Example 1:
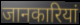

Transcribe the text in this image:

जानकारियां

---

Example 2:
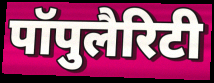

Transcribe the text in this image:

पॉपुलैरिटी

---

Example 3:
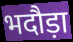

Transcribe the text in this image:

भदौड़ा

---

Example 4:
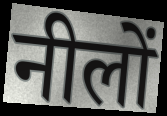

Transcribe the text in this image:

नीलों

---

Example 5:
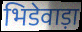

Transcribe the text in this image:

भिडेवाड़ा